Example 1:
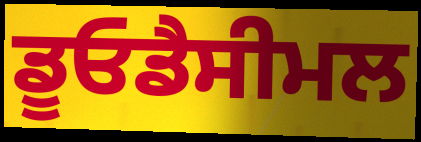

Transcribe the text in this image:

ਡੂਓਡੈਸੀਮਲ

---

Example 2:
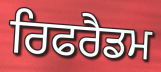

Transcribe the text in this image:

ਰਿਫਰੈਡਮ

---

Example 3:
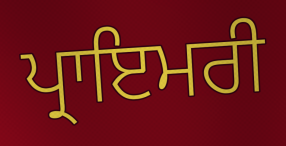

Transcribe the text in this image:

ਪ੍ਰਾਇਮਰੀ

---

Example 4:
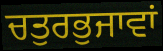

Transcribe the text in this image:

ਚਤੁਰਭੁਜਾਵਾਂ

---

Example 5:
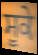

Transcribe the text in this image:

ਸੂਕੇ